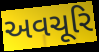
અવચૂરિ